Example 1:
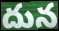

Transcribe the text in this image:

దున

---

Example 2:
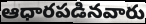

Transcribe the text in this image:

ఆధారపడినవారు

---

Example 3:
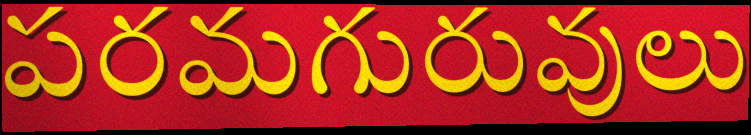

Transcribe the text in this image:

పరమగురువులు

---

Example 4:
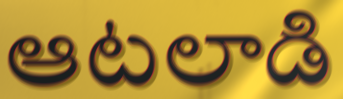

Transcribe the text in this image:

ఆటలాడి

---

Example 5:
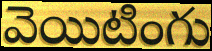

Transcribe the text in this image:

వెయిటింగు